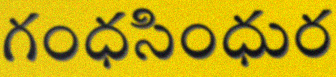
గంధసింధుర